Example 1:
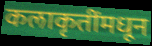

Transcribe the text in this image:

कलाकृतींमधून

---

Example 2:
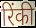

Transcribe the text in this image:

रिंकी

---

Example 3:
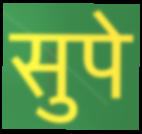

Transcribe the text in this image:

सुपे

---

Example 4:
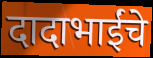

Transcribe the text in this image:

दादाभाईंचे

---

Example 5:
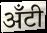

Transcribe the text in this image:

अँटी